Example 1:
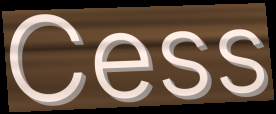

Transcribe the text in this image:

Cess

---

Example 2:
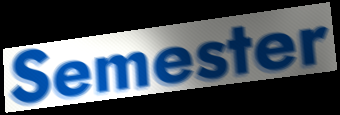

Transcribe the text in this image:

Semester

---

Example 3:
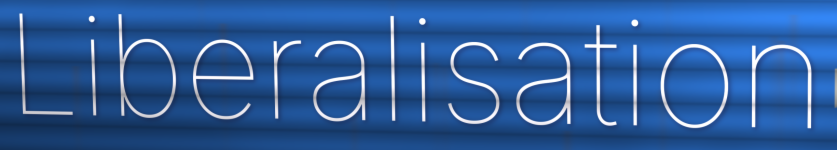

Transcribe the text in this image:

Liberalisation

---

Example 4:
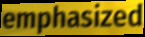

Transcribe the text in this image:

emphasized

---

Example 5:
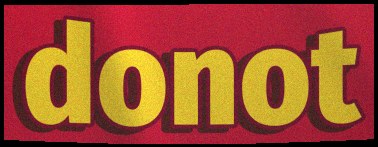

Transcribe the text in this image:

donot